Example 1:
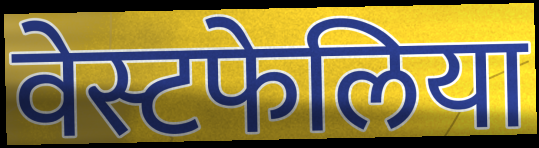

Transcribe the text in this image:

वेस्टफेलिया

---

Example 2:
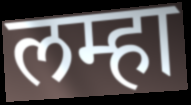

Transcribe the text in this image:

लम्हा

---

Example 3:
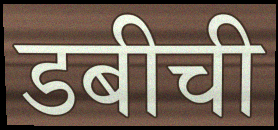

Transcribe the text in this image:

डबीची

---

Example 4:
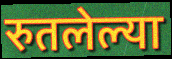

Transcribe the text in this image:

रुतलेल्या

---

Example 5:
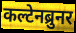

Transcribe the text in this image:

कल्टेनब्रुनर